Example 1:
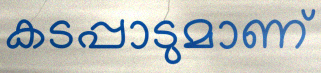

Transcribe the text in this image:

കടപ്പാടുമാണ്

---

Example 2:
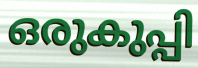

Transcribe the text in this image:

ഒരുകുപ്പി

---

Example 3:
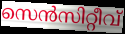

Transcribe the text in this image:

സെൻസിറ്റീവ്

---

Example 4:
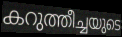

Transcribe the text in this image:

കറുത്തീച്ചയുടെ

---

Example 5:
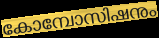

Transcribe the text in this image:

കോമ്പോസിഷനും